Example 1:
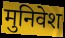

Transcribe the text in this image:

मुनिवेश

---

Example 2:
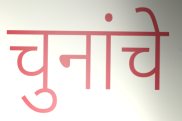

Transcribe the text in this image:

चुनांचे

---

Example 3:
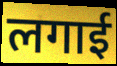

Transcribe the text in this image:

लगाई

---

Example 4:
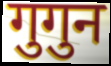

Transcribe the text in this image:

गुगुन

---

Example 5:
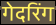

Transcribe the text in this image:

गेदरिंग